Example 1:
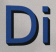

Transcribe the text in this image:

Di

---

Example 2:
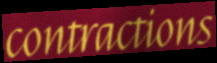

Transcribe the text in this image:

contractions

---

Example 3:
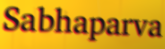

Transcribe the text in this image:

Sabhaparva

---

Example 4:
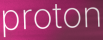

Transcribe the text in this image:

proton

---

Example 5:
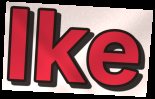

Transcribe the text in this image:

Ike